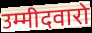
उम्मीदवारो